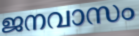
ജനവാസം